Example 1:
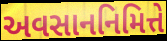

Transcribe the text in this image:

અવસાનનિમિત્તે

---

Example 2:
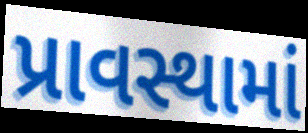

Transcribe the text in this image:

પ્રાવસ્થામાં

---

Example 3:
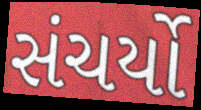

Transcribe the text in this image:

સંચર્યો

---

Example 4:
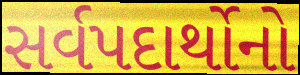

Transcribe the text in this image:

સર્વપદાર્થોનો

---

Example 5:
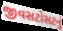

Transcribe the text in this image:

જીવસટોસટનું